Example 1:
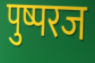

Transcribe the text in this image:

पुष्परज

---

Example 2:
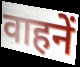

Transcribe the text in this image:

वाहनें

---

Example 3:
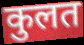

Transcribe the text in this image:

कुलत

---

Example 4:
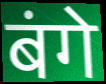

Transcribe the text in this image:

बंगे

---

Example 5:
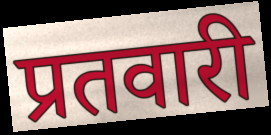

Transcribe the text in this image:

प्रतवारी